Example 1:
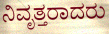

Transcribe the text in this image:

ನಿವೃತ್ತರಾದರು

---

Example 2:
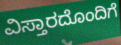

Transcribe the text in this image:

ವಿಸ್ತಾರದೊಂದಿಗೆ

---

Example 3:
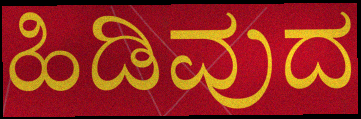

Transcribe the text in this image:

ಹಿಡಿವುದ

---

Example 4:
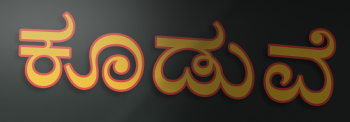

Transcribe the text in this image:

ಕೂಡುವೆ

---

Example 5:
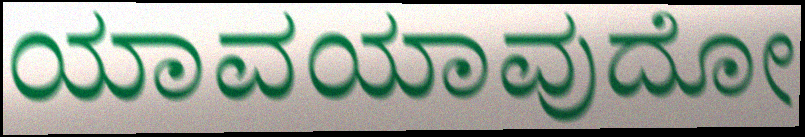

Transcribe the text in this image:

ಯಾವಯಾವುದೋ